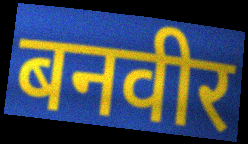
बनवीर